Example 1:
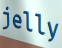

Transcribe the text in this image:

jelly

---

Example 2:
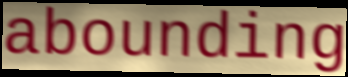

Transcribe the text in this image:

abounding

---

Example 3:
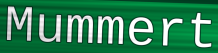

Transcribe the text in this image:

Mummert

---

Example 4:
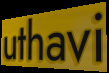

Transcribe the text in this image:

uthavi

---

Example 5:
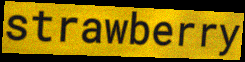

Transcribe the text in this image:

strawberry